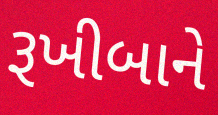
રૂખીબાને